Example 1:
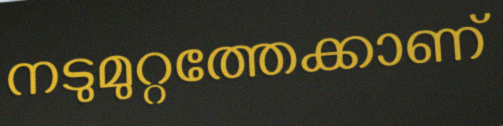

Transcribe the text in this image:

നടുമുറ്റത്തേക്കാണ്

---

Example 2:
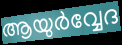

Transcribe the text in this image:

ആയുർവ്വേദ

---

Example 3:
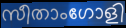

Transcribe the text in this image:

സീതാംഗോളി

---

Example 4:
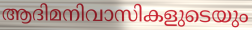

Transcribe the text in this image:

ആദിമനിവാസികളുടെയും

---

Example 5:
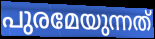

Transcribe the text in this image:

പുരമേയുന്നത്